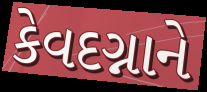
કેવદગ્નાને